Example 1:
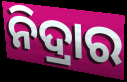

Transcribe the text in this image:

ନିଦ୍ରାର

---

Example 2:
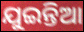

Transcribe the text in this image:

ଯୁଇନ୍ତିଆ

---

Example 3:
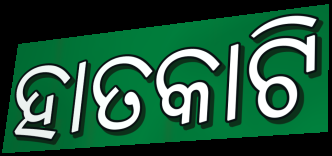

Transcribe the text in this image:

ହାତକାଟି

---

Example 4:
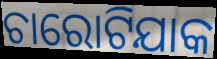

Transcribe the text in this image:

ଚାରୋଟିଯାକ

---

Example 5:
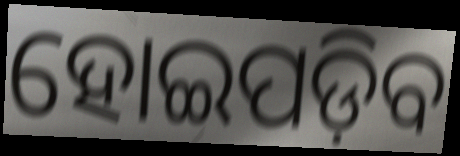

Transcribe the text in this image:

ହୋଇପଡ଼ିବ